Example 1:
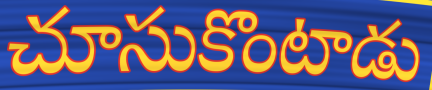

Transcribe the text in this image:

చూసుకొంటాడు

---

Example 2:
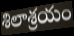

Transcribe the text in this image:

శిలాశ్రయం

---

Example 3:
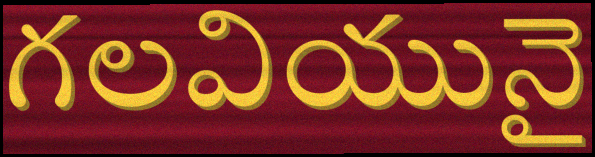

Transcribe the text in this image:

గలవియునై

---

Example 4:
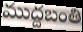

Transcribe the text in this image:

ముద్దబంతి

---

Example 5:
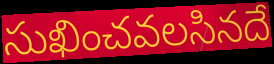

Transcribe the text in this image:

సుఖించవలసినదే